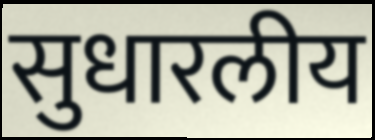
सुधारलीय